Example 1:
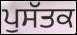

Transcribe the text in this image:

ਪੁਸੱਤਕ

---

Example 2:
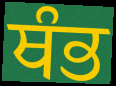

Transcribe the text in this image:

ਥੰਭ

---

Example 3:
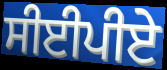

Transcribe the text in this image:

ਸੀਈਪੀਏ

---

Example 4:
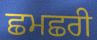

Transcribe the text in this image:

ਛਮਛਰੀ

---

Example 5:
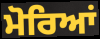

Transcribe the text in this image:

ਮੋਰਿਆਂ